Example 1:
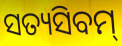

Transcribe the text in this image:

ସତ୍ୟସିବମ୍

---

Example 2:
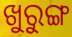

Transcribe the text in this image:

ଖୁରୁଙ୍ଗ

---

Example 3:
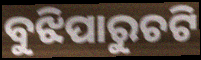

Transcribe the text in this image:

ବୁଝିପାରୁଚଟି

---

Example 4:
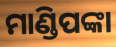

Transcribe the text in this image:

ମାଣ୍ଡିପଙ୍କା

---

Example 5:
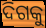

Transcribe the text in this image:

ଦିଗକୁ